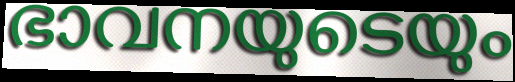
ഭാവനയുടെയും